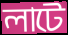
লাটে